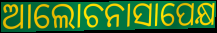
ଆଲୋଚନାସାପେକ୍ଷ